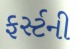
ફર્સ્ટની